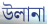
উলানা